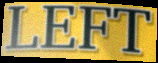
LEFT